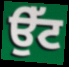
ਉੱਟ